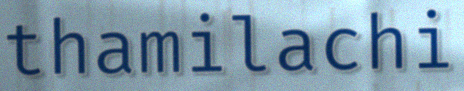
thamilachi